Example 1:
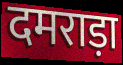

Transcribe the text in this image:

दमराड़ा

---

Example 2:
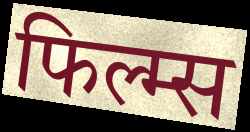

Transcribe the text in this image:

फिल्म्स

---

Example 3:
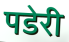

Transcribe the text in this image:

पडेरी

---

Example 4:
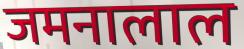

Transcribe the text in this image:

जमनालाल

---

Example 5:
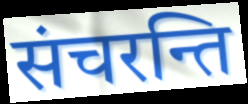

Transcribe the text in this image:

संचरन्ति